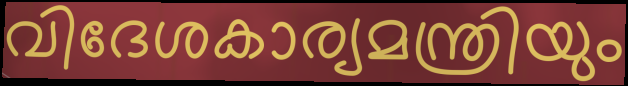
വിദേശകാര്യമന്ത്രിയും